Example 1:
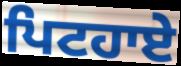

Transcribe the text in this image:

ਪਿਟਹਾਏ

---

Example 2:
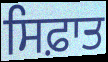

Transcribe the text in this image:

ਸਿਫ਼ਾਤ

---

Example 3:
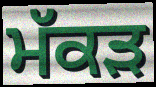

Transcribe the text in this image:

ਮੱਕੜ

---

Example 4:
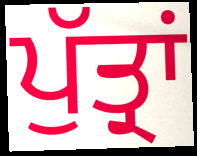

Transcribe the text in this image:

ਪੁੱਤ੍ਰਾਂ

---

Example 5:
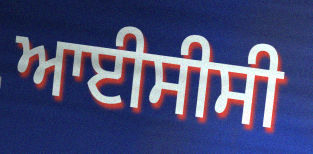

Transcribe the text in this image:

ਆਈਸੀਸੀ